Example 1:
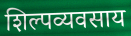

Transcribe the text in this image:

शिल्पव्यवसाय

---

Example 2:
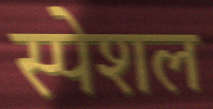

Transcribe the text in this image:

स्पेशल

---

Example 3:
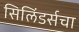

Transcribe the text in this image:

सिलिंडर्सचा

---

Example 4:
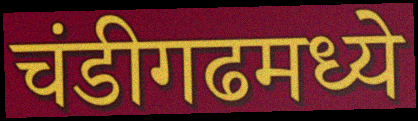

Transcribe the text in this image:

चंडीगढमध्ये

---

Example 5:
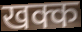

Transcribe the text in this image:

खक्क